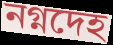
নগ্নদেহ